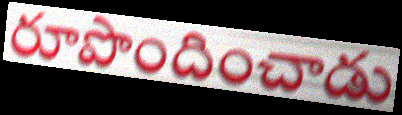
రూపొందించాడు